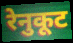
रेनुकूट